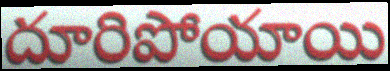
దూరిపోయాయి